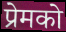
प्रेमको